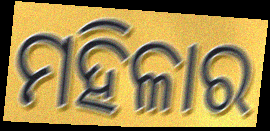
ମହିଳାର